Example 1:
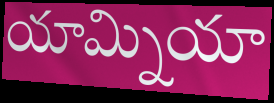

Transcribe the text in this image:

యామ్నియా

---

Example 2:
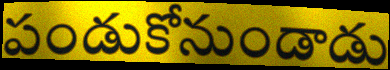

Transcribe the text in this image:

పండుకోనుండాడు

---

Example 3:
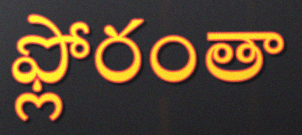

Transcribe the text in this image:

ఫ్లోరంతా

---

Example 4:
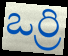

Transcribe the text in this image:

ఒర్రి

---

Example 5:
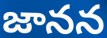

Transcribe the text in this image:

జానన